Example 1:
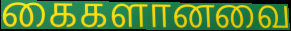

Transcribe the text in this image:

கைகளானவை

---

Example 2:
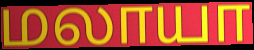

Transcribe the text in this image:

மலாயா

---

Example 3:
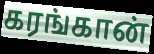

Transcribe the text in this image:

கரங்கான்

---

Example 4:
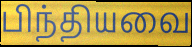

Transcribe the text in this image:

பிந்தியவை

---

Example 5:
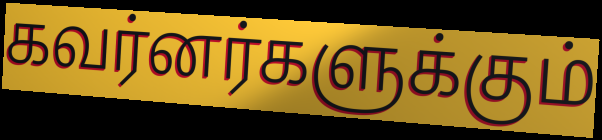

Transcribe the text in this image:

கவர்னர்களுக்கும்